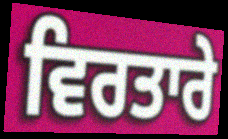
ਵਿਰਤਾਰੇ